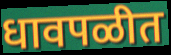
धावपळीत